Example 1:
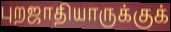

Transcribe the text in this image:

புறஜாதியாருக்குக்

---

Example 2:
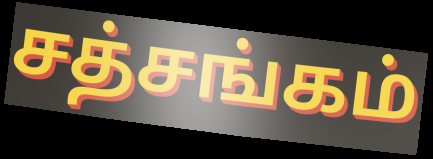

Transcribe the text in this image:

சத்சங்கம்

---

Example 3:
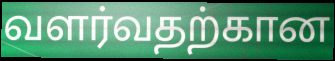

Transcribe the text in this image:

வளர்வதற்கான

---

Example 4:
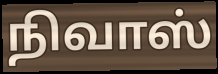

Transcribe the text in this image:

நிவாஸ்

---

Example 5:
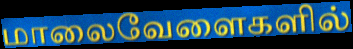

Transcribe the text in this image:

மாலைவேளைகளில்